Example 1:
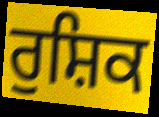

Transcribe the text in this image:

ਰੁਸ਼ਿਕ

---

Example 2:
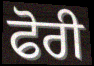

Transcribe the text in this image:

ਫੋਰੀ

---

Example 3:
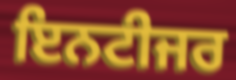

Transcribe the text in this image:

ਇਨਟੀਜਰ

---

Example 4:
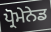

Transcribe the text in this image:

ਪ੍ਰੋਮੇਨੇਡ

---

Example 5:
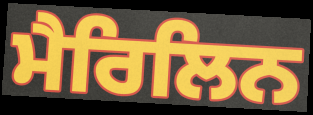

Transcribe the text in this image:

ਮੈਰਿਲਿਨ